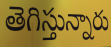
తెగిస్తున్నారు